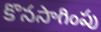
కొనసాగింపు